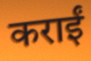
कराईं